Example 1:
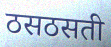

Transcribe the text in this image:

ठसठसती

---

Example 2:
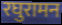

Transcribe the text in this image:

रघुरामन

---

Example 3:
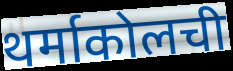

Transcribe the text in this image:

थर्माकोलची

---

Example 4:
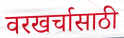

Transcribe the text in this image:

वरखर्चासाठी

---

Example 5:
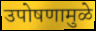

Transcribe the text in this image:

उपोषणामुळे